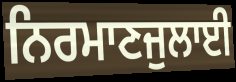
ਨਿਰਮਾਣਜੁਲਾਈ